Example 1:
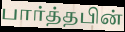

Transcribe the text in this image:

பார்த்தபின்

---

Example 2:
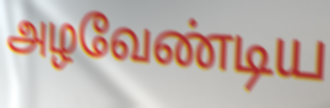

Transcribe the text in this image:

அழவேண்டிய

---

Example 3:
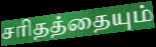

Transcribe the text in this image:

சரிதத்தையும்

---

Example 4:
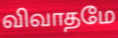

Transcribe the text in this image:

விவாதமே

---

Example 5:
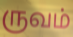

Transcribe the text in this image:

ருவம்